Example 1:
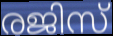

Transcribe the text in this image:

രജിസ്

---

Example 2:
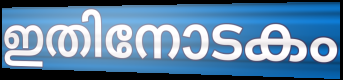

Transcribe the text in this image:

ഇതിനോടകം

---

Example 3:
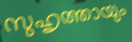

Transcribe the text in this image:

സുഹൃത്തായും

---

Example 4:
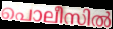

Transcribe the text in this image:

പൊലീസിൽ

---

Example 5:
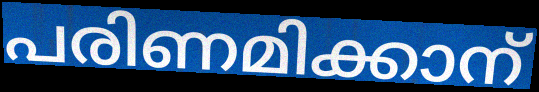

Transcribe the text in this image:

പരിണമിക്കാന്